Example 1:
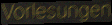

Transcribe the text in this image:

Vorlesungen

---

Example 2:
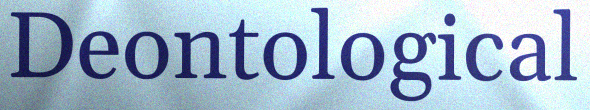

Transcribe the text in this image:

Deontological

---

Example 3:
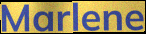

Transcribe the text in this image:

Marlene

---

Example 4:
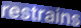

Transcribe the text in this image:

restrains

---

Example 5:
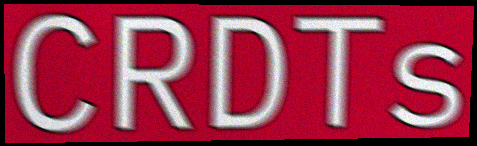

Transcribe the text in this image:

CRDTs